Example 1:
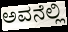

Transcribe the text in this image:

ಅವನೆಲ್ಲಿ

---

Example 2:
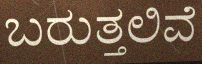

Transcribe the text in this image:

ಬರುತ್ತಲಿವೆ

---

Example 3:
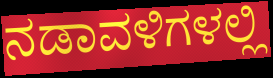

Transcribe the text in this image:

ನಡಾವಳಿಗಳಲ್ಲಿ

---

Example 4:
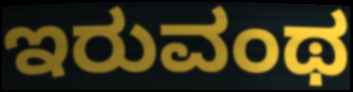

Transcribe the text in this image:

ಇರುವಂಥ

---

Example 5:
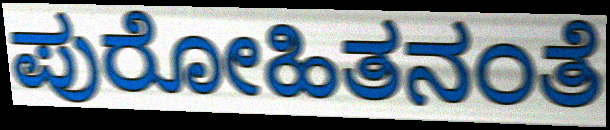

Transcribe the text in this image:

ಪುರೋಹಿತನಂತೆ